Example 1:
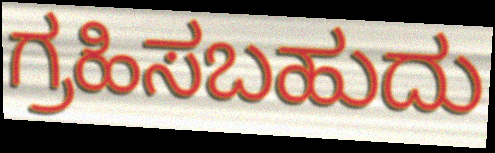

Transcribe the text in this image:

ಗ್ರಹಿಸಬಹುದು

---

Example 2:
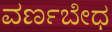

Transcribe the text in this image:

ವರ್ಣಬೇಧ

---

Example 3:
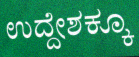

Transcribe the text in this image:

ಉದ್ದೇಶಕ್ಕೂ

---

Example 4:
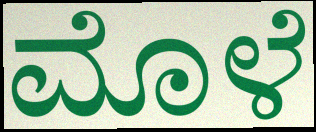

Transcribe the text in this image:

ಮೊಳೆ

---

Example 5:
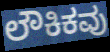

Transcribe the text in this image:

ಲೌಕಿಕವು